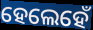
ହେଲେହେଁ